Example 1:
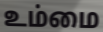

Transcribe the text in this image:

உம்மை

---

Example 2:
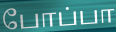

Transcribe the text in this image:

போப்பா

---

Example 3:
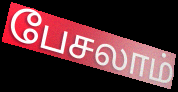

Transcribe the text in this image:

பேசலாம்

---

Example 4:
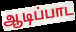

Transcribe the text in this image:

ஆடிப்பாட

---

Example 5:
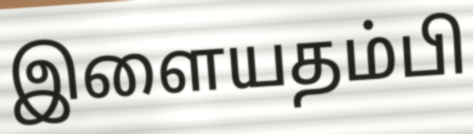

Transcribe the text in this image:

இளையதம்பி